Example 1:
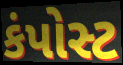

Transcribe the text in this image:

કંપોસ્ટ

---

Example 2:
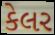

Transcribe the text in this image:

કેલર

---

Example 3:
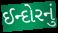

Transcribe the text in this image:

ઈન્દોરનું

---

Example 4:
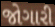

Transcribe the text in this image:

જોગારી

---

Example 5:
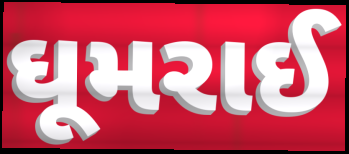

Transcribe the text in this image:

ઘૂમરાઈ